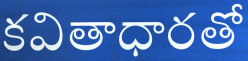
కవితాధారతో